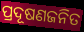
ପ୍ରଦୂଷଣଜନିତ